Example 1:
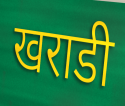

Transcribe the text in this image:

खराडी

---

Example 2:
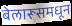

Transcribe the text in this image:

बेलारूसमधून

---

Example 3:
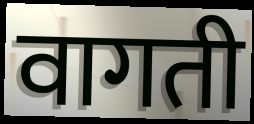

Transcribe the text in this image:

वागती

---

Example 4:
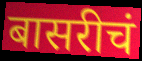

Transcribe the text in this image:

बासरीचं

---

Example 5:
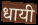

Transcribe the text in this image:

धायी